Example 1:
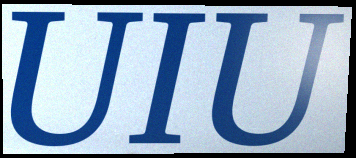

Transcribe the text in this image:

UIU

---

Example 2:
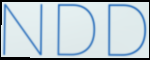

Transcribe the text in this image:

NDD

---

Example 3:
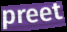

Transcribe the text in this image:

preet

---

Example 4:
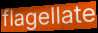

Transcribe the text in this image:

flagellate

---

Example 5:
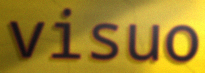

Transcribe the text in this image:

visuo